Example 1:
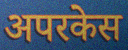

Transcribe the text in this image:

अपरकेस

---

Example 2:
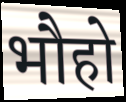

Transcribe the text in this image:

भौहो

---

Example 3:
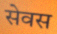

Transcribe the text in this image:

सेवस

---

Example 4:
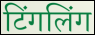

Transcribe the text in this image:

टिंगलिंग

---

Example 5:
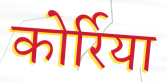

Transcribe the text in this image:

कोर्रिया